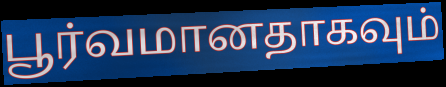
பூர்வமானதாகவும்